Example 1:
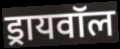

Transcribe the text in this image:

ड्रायवॉल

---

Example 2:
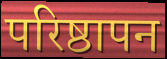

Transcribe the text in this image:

परिष्ठापन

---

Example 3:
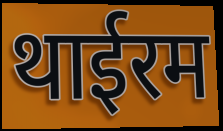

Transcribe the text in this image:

थाईरम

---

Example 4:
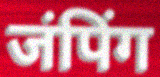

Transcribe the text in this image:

जंपिंग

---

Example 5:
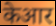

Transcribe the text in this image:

केआर